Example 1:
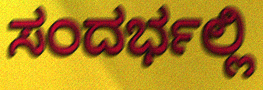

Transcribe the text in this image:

ಸಂದರ್ಭಲ್ಲಿ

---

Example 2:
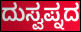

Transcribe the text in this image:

ದುಸ್ವಪ್ನದ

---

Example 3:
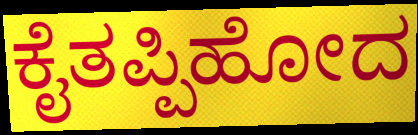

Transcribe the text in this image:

ಕೈತಪ್ಪಿಹೋದ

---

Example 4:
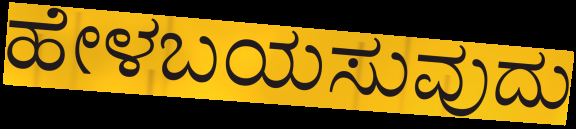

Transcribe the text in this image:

ಹೇಳಬಯಸುವುದು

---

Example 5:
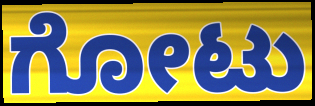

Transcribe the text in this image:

ಗೋಟು